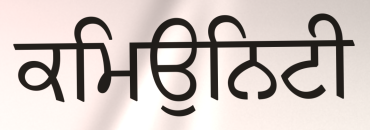
ਕਮਿਉਨਿਟੀ